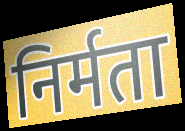
निर्मता